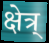
क्षेत्र्